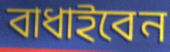
বাধাইবেন